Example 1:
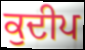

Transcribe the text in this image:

ਕੁਦੀਪ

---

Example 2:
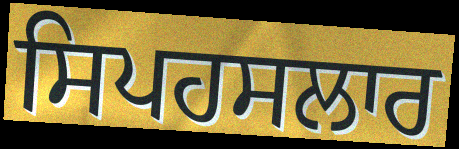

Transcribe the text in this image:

ਸਿਪਹਸਲਾਰ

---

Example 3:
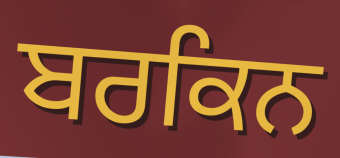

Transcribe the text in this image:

ਬਰਕਿਨ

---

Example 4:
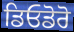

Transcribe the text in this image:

ਡਿਓਡੋਰੋ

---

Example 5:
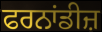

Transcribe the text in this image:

ਫਰਨਾਂਡੀਜ਼